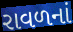
રાવળનાં